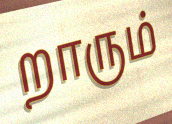
றாரும்